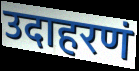
उदाहरणं